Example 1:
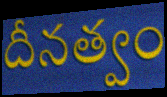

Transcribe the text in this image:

దీనత్వం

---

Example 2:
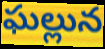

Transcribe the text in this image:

ఘల్లున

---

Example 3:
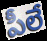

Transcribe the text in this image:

పీలే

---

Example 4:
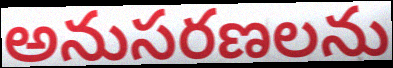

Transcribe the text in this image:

అనుసరణలను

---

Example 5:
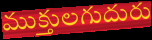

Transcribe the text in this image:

ముక్తులగుదురు